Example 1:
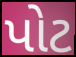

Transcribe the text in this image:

પોટ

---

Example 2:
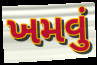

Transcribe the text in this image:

ખમવું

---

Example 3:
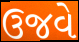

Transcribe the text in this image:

ઉજવે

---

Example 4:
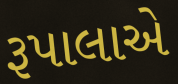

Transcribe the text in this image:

રૂપાલાએ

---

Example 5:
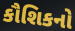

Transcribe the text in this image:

કૌશિકનો